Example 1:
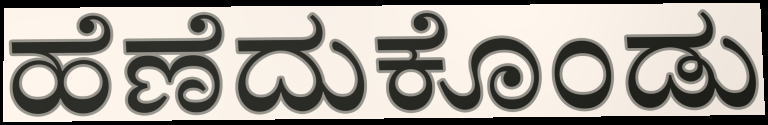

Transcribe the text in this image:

ಹೆಣೆದುಕೊಂಡು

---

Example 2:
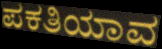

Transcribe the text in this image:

ಪಕತಿಯಾವ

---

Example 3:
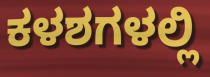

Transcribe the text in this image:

ಕಳಶಗಳಲ್ಲಿ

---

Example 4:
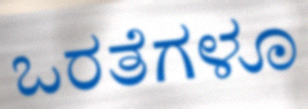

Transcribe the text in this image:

ಒರತೆಗಳೂ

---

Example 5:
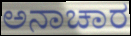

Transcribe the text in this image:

ಅನಾಚಾರ